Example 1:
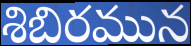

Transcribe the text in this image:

శిబిరమున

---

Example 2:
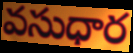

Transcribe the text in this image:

వసుధార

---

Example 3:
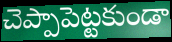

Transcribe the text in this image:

చెప్పాపెట్టకుండా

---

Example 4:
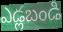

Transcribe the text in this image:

ఎడ్లబండి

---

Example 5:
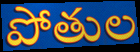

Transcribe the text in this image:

పోతుల